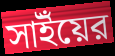
সাইঁয়ের